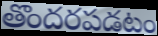
తొందరపడటం